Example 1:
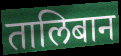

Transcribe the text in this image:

तालिबान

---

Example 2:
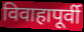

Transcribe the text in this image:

विवाहापूर्वी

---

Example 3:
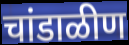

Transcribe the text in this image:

चांडाळीण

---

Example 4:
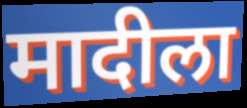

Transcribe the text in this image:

मादीला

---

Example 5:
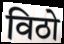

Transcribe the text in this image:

विठो